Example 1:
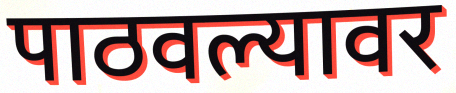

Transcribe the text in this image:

पाठवल्यावर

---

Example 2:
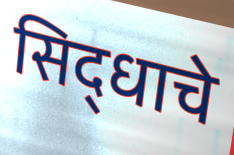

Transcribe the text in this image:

सिद्धाचे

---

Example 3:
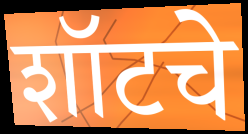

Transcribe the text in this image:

शॉटचे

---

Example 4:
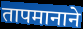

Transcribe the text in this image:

तापमानाने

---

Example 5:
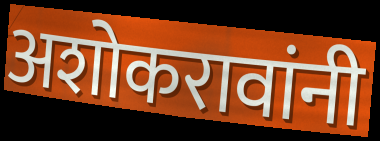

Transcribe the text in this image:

अशोकरावांनी